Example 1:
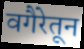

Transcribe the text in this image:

वगैरेतून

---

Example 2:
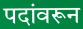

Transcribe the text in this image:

पदांवरून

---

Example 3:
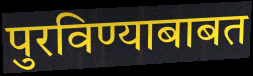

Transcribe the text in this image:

पुरविण्याबाबत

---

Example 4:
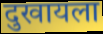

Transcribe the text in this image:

दुखायला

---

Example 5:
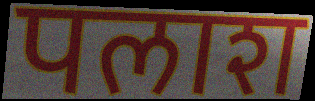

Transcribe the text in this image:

पलाश